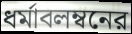
ধর্মাবলম্বনের